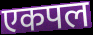
एकपल